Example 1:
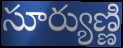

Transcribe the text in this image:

సూర్యుణ్ణి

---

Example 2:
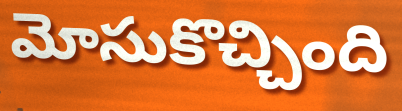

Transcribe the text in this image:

మోసుకొచ్చింది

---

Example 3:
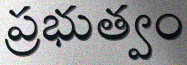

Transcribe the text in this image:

ప్రభుత్వం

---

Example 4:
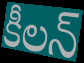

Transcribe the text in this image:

కీలన్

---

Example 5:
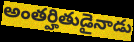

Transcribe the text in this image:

అంతర్హితుడైనాడు